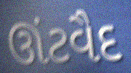
ઊંટવૈદ